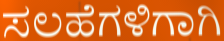
ಸಲಹೆಗಳಿಗಾಗಿ